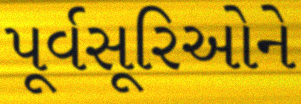
પૂર્વસૂરિઓને